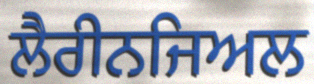
ਲੈਰੀਨਜਿਅਲ